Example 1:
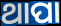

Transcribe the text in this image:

ଥାପା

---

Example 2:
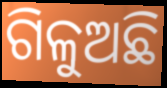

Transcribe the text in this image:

ଗିଳୁଅଛି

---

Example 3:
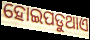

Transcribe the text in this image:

ହୋଇପଡୁଥାଏ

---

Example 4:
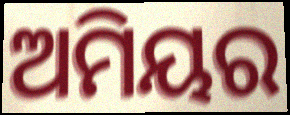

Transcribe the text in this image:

ଅମିୟର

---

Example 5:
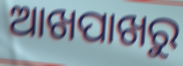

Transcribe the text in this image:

ଆଖପାଖରୁ